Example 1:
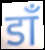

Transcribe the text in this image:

डॉँ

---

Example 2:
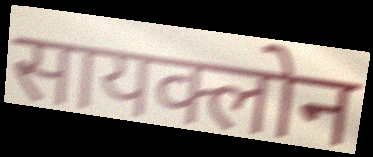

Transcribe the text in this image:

सायक्लोन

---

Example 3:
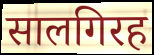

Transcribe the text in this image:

सालगिरह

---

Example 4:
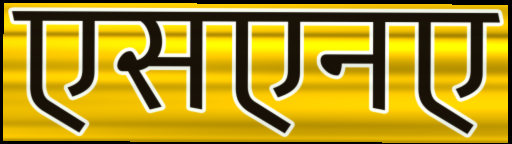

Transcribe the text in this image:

एसएनए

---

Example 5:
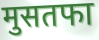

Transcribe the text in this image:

मुसतफा